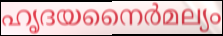
ഹൃദയനൈർമല്യം